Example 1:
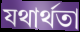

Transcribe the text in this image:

যথাৰ্থতা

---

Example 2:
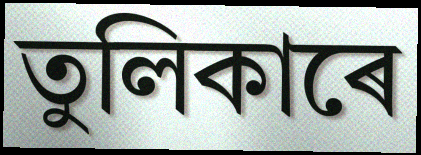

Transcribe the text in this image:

তুলিকাৰে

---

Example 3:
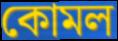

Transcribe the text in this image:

কোমল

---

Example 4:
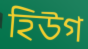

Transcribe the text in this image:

হিউগ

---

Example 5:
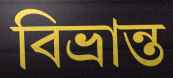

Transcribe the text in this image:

বিভ্ৰান্ত